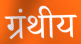
ग्रंथीय